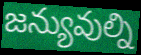
జన్యువుల్ని